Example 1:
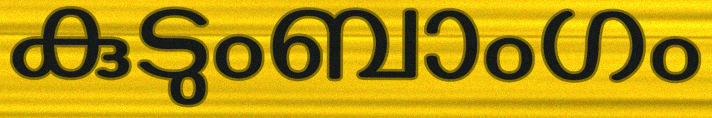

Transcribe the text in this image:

കുടുംബാംഗം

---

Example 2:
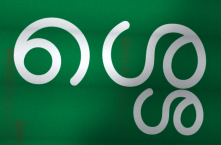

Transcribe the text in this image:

ശ്ശെ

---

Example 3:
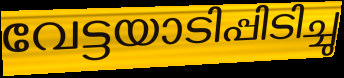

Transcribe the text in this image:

വേട്ടയാടിപ്പിടിച്ചു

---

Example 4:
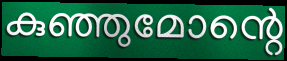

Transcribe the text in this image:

കുഞ്ഞുമോന്റെ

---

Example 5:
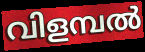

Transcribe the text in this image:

വിളമ്പൽ